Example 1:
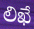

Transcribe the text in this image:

లిఖే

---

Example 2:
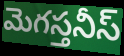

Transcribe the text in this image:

మెగస్తనీస్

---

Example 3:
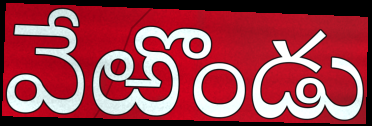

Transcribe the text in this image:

వేఱొండు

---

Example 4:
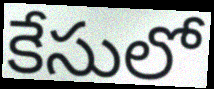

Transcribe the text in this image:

కేసులో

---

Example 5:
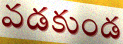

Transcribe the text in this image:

వడకుండ